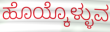
ಹೊಯ್ಕೊಳ್ಳುವ